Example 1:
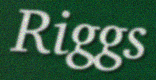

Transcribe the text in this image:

Riggs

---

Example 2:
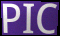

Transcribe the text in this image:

PIC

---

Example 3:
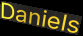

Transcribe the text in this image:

Daniels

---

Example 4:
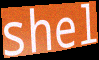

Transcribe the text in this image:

shel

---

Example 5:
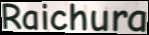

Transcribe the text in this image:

Raichura